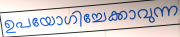
ഉപയോഗിച്ചേക്കാവുന്ന